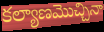
కల్యాణమొచ్చినా